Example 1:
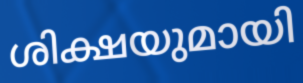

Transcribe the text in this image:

ശിക്ഷയുമായി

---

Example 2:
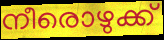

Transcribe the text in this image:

നീരൊഴുക്ക്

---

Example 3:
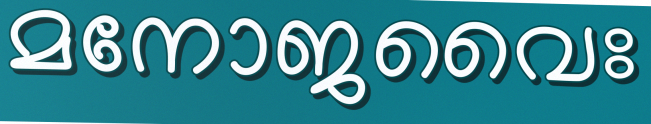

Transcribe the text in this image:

മനോജവൈഃ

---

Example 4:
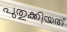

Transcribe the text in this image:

പുതുക്കിയത്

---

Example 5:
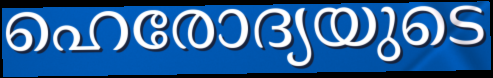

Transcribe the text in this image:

ഹെരോദ്യയുടെ